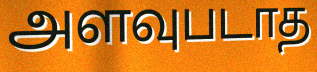
அளவுபடாத